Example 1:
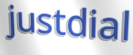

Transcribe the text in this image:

justdial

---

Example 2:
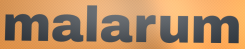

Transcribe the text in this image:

malarum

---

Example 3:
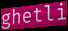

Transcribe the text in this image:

ghetli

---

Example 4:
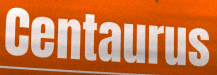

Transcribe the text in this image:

Centaurus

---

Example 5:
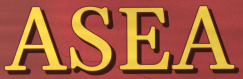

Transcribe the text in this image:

ASEA